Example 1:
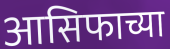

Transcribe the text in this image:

आसिफाच्या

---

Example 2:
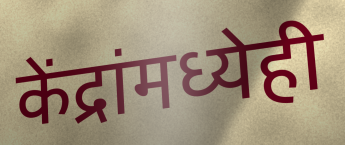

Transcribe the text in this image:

केंद्रांमध्येही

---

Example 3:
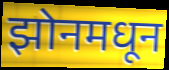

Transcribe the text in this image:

झोनमधून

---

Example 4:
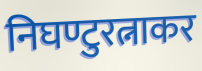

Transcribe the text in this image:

निघण्टुरत्नाकर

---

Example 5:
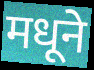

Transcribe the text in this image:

मधूने